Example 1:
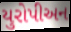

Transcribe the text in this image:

યુરોપીઅન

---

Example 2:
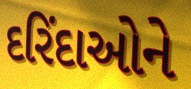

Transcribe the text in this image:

દરિંદાઓને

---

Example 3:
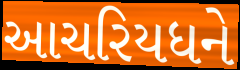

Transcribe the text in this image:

આચરિયધને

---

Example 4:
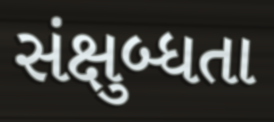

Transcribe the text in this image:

સંક્ષુબ્ધતા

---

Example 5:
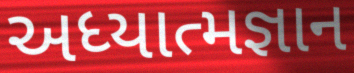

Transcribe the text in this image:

અધ્યાત્મજ્ઞાન